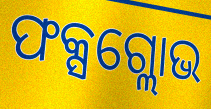
ଫକ୍ସଗ୍ଲୋଭ